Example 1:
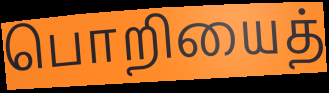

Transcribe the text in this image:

பொறியைத்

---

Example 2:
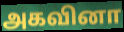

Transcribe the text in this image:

அகவினா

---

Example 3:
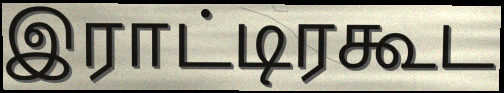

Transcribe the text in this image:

இராட்டிரகூட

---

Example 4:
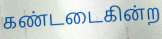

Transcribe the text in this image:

கண்டடைகின்ற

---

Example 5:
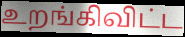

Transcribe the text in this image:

உறங்கிவிட்ட